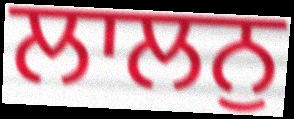
ਲਾਲਨੁ